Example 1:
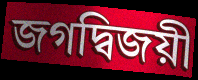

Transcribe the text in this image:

জগদ্বিজয়ী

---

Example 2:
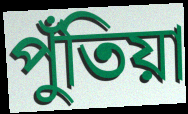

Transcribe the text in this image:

পুঁতিয়া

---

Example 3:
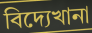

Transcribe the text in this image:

বিদ্যেখানা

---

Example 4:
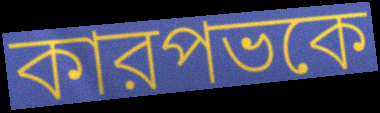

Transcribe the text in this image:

কারপভকে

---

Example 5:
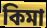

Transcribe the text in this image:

কিমা